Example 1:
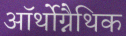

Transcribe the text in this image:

ऑर्थोग्नैथिक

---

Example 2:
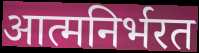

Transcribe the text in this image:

आत्मनिर्भरत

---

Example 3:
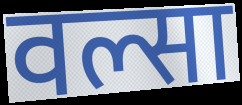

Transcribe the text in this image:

वल्सा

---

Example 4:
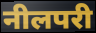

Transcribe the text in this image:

नीलपरी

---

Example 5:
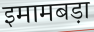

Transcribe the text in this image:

इमामबड़ा